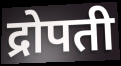
द्रोपती